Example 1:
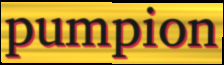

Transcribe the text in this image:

pumpion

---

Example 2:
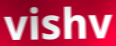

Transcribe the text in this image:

vishv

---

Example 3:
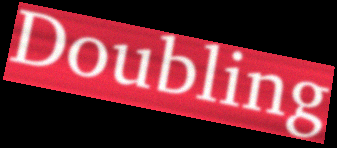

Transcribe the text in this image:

Doubling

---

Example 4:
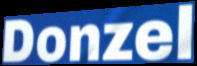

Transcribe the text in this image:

Donzel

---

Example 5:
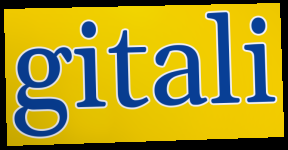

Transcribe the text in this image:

gitali